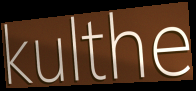
kulthe